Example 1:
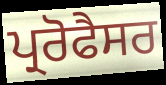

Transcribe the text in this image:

ਪ੍ਰਰੋਫੈਸਰ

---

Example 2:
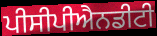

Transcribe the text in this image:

ਪੀਸੀਪੀਐਨਡੀਟੀ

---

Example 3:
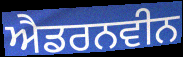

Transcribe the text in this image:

ਐਡਰਨਵੀਨ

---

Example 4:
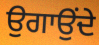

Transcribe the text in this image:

ਉਗਾਉਂਦੇ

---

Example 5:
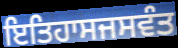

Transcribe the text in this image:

ਇਤਿਹਾਸਜਸਵੰਤ